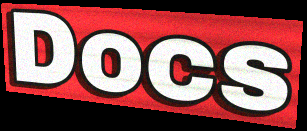
Docs